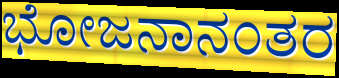
ಭೋಜನಾನಂತರ